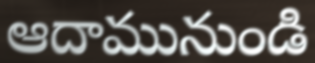
ఆదామునుండి